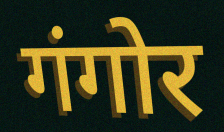
गंगोर